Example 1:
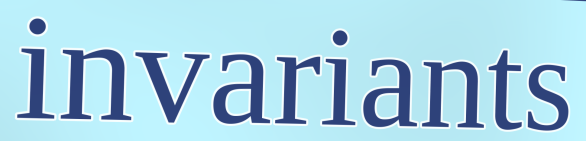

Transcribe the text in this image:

invariants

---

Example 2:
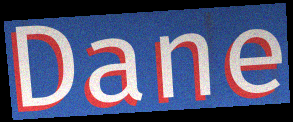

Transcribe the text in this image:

Dane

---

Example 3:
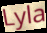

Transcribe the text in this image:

Lyla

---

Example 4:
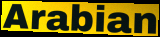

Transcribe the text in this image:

Arabian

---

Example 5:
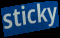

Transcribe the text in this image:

sticky